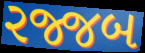
રજ્જબ